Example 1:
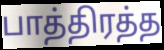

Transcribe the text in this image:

பாத்திரத்த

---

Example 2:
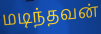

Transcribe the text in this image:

மடிந்தவன்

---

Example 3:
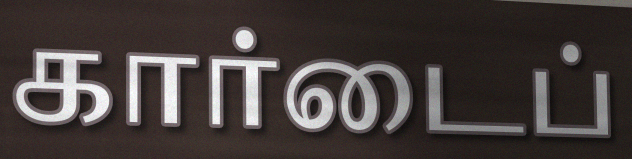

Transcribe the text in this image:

கார்டைப்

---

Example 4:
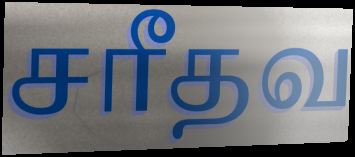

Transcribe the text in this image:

சரீதவ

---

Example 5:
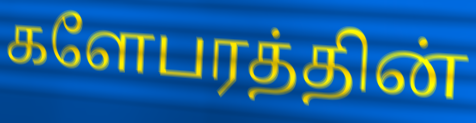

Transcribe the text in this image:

களேபரத்தின்